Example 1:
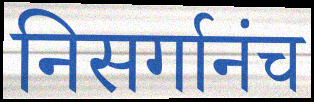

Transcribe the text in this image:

निसर्गानंच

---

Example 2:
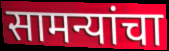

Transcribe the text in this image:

सामन्यांचा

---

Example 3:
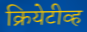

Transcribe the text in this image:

क्रियेटीव्ह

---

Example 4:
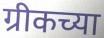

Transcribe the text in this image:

ग्रीकच्या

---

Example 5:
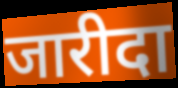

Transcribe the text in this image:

जारीदा